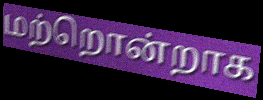
மற்றொன்றாக